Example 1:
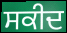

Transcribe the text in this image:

ਸਕੀਦ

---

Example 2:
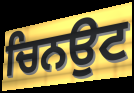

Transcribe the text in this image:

ਚਿਨਉਟ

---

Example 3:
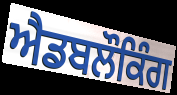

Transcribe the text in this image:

ਐਡਬਲੌਕਿੰਗ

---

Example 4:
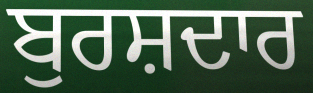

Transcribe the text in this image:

ਬੁਰਸ਼ਦਾਰ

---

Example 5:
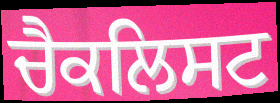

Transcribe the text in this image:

ਚੈਕਲਿਸਟ